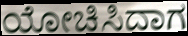
ಯೋಚಿಸಿದಾಗ